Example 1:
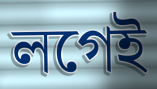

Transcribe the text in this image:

লগেই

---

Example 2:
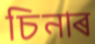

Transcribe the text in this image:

চিনাৰ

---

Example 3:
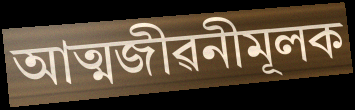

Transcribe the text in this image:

আত্মজীৱনীমূলক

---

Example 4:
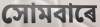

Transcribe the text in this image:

সোমবাৰে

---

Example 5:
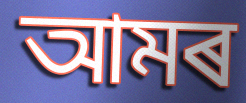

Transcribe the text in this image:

আমৰ